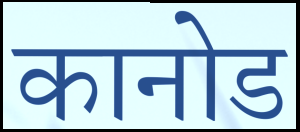
कानोड